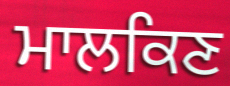
ਮਾਲਕਿਣ